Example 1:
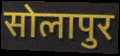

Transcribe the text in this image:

सोलापुर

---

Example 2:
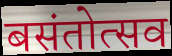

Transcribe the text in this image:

बसंतोत्सव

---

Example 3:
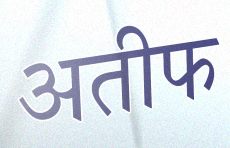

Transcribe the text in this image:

अतीफ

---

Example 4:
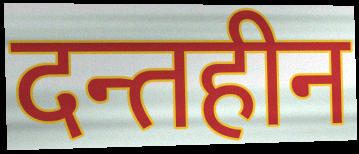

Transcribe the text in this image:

दन्तहीन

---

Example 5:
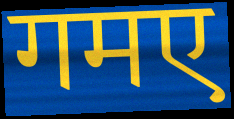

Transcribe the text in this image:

गमए